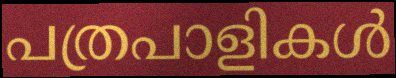
പത്രപാളികൾ